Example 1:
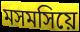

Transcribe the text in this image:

মসমসিয়ে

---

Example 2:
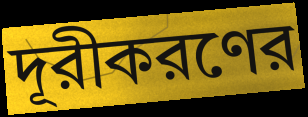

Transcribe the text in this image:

দূরীকরণের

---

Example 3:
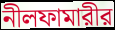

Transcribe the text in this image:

নীলফামারীর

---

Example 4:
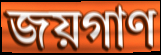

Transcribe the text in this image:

জয়গাণ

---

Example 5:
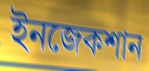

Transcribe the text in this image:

ইনজেকশান